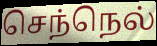
செந்நெல்